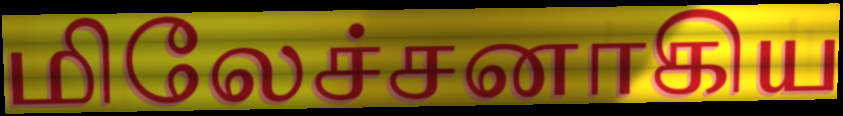
மிலேச்சனாகிய